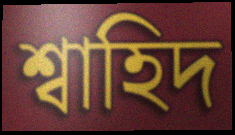
শ্বাহিদ